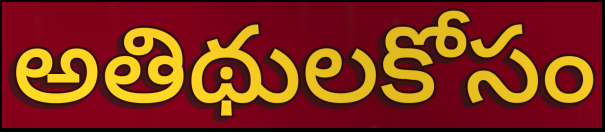
అతిథులకోసం